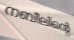
നബീലിന്റെ